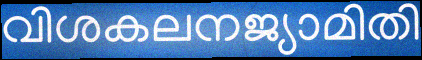
വിശകലനജ്യാമിതി